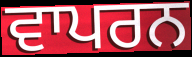
ਵਾਪਰਨ